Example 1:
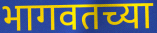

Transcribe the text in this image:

भागवतच्या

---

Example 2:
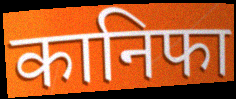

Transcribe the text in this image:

कानिफा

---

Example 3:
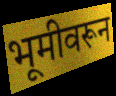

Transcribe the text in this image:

भूमीवरून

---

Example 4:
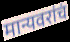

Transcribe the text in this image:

मान्यवरांचं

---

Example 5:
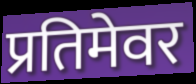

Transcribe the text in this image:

प्रतिमेवर